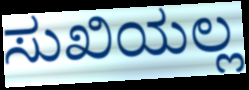
ಸುಖಿಯಲ್ಲ